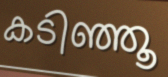
കടിഞ്ഞൂ